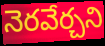
నెరవేర్చని